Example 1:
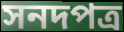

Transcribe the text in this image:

সনদপত্র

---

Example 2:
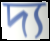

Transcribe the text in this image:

দ্য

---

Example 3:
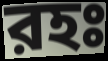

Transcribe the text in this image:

রহঃ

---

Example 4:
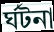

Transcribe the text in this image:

র্ঘটনা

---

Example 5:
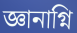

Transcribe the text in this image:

জ্ঞানাগ্নি